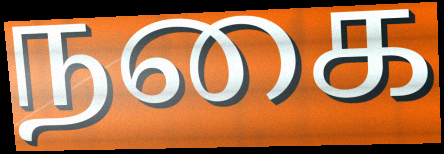
நகை